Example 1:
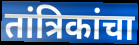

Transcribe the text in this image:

तांत्रिकांचा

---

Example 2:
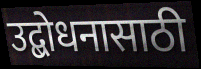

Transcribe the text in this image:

उद्बोधनासाठी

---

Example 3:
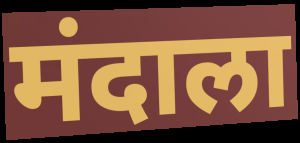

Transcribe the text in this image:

मंदाला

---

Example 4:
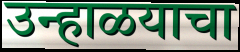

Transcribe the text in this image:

उन्हाळयाचा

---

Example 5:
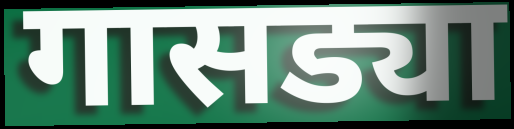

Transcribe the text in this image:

गासड्या